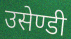
उसेण्डी